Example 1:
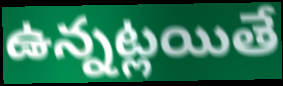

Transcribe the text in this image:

ఉన్నట్లయితే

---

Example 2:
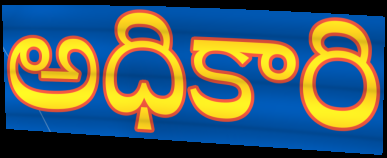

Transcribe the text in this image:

అధికారి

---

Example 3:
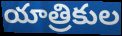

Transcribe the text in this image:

యాత్రికుల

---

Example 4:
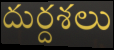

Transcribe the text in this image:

దుర్దశలు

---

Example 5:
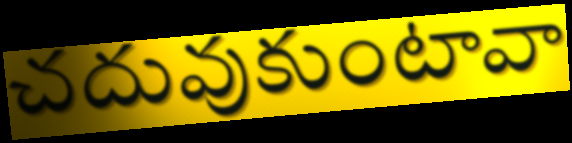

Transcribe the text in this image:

చదువుకుంటావా